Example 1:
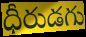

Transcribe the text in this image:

ధీరుడగు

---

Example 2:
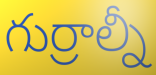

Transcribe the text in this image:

గుర్రాల్నీ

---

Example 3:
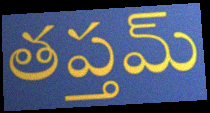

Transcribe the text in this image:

తప్తమ్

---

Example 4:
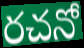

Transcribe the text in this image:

రచనో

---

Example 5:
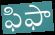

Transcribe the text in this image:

ఫిఫా